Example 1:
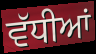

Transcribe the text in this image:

ਵੱਧੀਆਂ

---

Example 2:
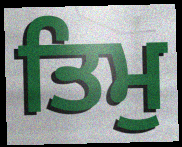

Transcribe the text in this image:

ਤਿਮੁ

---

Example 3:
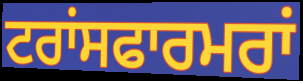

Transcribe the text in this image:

ਟਰਾਂਸਫਾਰਮਰਾਂ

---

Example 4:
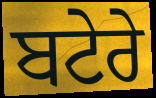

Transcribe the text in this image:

ਬਟੇਰੇ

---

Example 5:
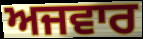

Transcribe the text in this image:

ਅਜਵਾਰ